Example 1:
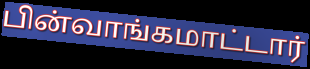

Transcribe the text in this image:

பின்வாங்கமாட்டார்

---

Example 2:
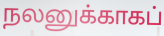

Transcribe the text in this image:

நலனுக்காகப்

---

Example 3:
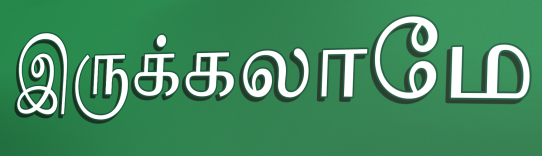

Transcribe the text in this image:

இருக்கலாமே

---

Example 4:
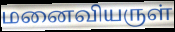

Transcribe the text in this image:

மனைவியருள்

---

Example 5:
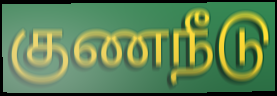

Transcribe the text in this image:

குணநீடு